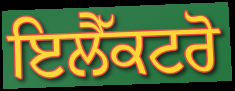
ਇਲੈੱਕਟਰੋ